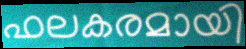
ഫലകരമായി